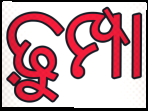
ଢ଼ୁମ୍ପା